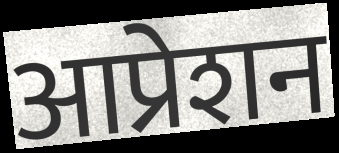
आप्रेशन